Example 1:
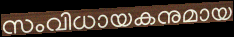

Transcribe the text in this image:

സംവിധായകനുമായ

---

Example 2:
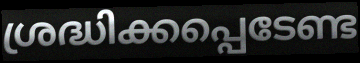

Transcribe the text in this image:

ശ്രദ്ധിക്കപ്പെടേണ്ട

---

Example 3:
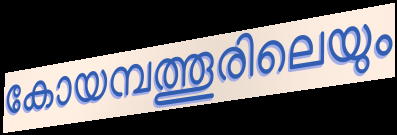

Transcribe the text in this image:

കോയമ്പത്തൂരിലെയും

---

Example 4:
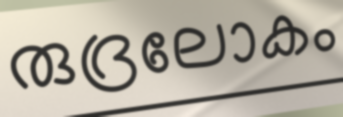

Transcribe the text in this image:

രുദ്രലോകം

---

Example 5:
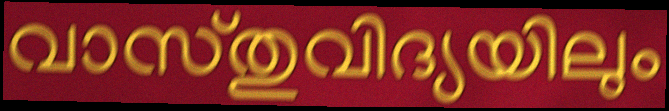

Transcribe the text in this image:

വാസ്തുവിദ്യയിലും